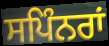
ਸਪਿੰਨਰਾਂ